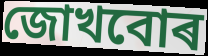
জোখবোৰ